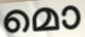
മൊ